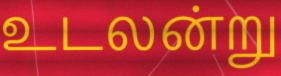
உடலன்று